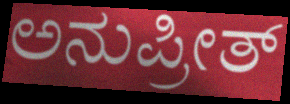
ಅನುಪ್ರೀತ್